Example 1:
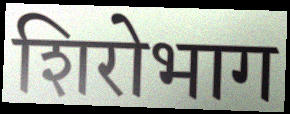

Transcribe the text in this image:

शिरोभाग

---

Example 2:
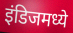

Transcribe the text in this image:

इंडिजमध्ये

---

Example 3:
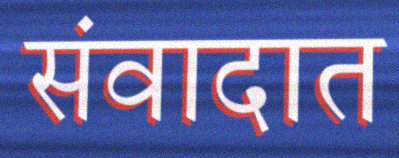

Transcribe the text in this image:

संवादात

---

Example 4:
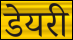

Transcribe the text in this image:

डेयरी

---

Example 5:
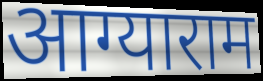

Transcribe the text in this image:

आग्याराम